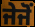
ਜੇਜੋਂ